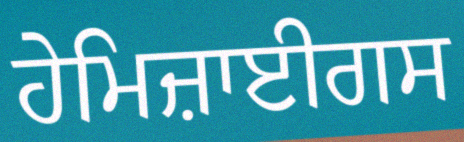
ਹੇਮਿਜ਼ਾਈਗਸ